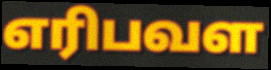
எரிபவள